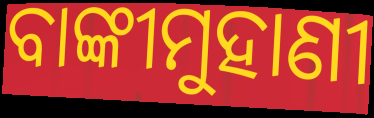
ବାଙ୍କୀମୁହାଣୀ